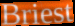
Briest